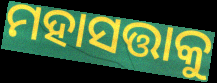
ମହାସତ୍ତାକୁ